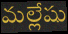
మల్లేషు